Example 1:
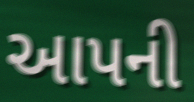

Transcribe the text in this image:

આપની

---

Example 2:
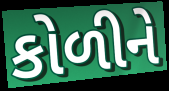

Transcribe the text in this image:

કોળીને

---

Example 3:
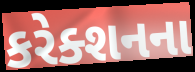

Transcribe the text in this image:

કરેક્શનના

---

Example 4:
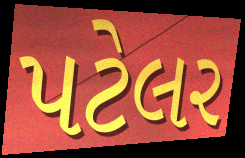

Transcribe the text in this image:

પટેલર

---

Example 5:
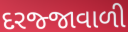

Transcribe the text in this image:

દરજ્જાવાળી